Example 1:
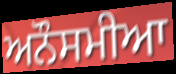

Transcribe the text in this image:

ਅਨੌਸਮੀਆ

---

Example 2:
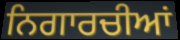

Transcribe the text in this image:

ਨਿਗਾਰਚੀਆਂ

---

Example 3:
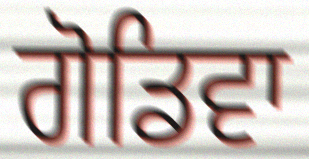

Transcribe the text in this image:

ਗੋਡਿਵਾ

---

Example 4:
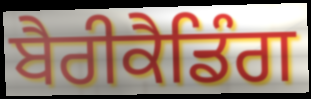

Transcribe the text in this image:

ਬੈਰੀਕੈਡਿੰਗ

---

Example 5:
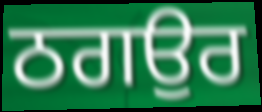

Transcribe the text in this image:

ਠਗਉਰ